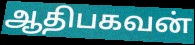
ஆதிபகவன்